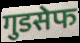
गुडसेफ